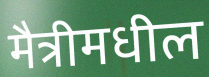
मैत्रीमधील